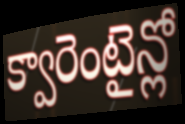
క్వారెంటైన్లో